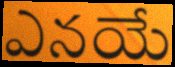
ఎనయే